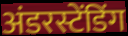
अंडरस्टेंडिंग